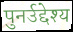
पुनर्उद्देश्य